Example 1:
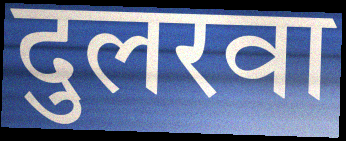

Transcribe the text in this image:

दुलरवा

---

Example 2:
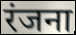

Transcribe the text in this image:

रंजना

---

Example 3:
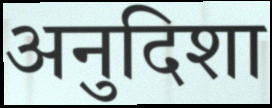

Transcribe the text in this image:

अनुदिशा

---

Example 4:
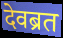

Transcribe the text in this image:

देवब्रत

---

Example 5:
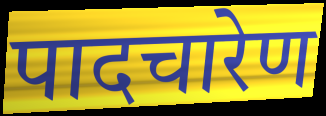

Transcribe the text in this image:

पादचारेण